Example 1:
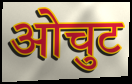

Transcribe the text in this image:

ओचुट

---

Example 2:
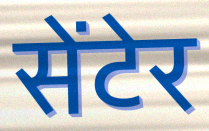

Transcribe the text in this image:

सेंटेर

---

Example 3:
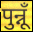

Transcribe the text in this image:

पुन्नूँ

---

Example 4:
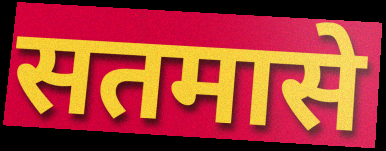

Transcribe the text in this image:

सतमासे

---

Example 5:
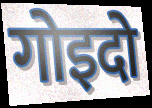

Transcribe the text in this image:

गोइदो